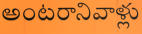
అంటరానివాళ్లు